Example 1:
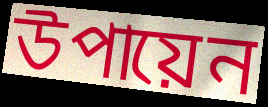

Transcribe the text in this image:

উপায়েন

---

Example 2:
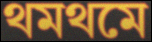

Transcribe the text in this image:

থমথমে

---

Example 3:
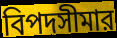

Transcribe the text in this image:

বিপদসীমার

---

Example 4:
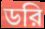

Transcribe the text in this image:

ডরি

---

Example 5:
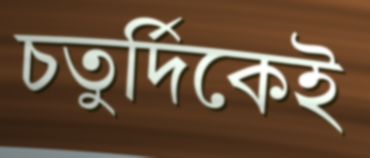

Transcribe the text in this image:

চতুর্দিকেই